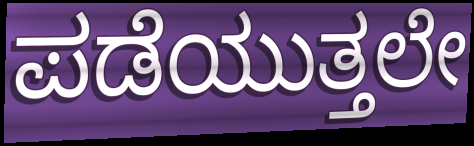
ಪಡೆಯುತ್ತಲೇ